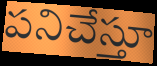
పనిచేస్తూ